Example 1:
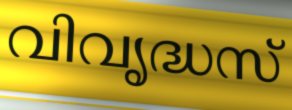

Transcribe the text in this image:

വിവൃദ്ധസ്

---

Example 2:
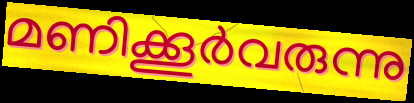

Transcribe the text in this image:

മണിക്കൂർവരുന്നു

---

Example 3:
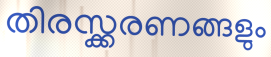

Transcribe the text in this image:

തിരസ്ക്കരണങ്ങളും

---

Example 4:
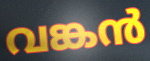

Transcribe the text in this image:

വങ്കൻ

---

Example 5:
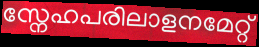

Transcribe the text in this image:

സ്നേഹപരിലാളനമേറ്റ്